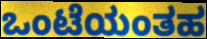
ಒಂಟೆಯಂತಹ